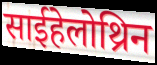
साईहेलोथ्रिन